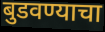
बुडवण्याचा